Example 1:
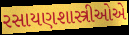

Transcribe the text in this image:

રસાયણશાસ્ત્રીઓએ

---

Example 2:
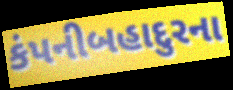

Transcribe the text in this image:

કંપનીબહાદુરના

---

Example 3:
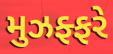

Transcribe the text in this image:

મુઝફ્ફરે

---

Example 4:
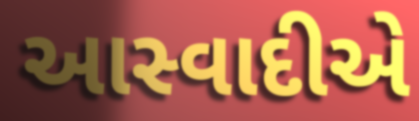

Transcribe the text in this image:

આસ્વાદીએ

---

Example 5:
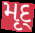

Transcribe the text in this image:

મૃદ્